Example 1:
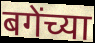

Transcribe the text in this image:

बगेंच्या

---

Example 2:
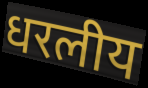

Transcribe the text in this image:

धरलीय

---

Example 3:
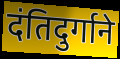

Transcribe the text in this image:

दंतिदुर्गाने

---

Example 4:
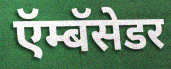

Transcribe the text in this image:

ऍम्बॅसेडर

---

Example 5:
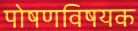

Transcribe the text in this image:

पोषणविषयक